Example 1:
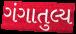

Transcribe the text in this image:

ગંગાતુલ્ય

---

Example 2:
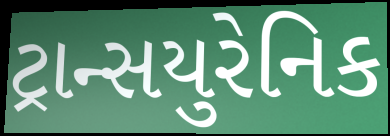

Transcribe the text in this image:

ટ્રાન્સયુરેનિક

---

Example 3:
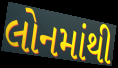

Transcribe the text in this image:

લોનમાંથી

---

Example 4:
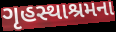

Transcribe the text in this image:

ગૃહસ્થાશ્રમના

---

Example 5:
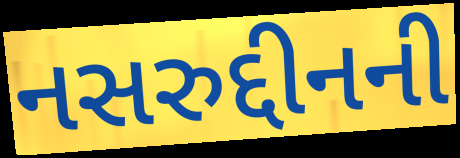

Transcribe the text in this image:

નસરુદ્દીનની